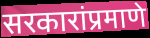
सरकारांप्रमाणे